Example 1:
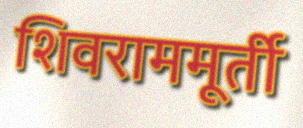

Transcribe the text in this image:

शिवराममूर्ती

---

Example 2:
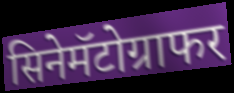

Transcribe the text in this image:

सिनेमॅटोग्राफर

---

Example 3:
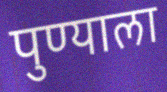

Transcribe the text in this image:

पुण्याला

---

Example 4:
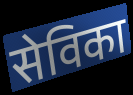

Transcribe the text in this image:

सेविका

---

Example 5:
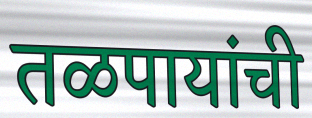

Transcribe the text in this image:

तळपायांची